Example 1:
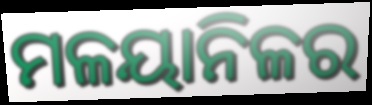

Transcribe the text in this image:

ମଳୟାନିଳର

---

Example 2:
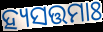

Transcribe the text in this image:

ହ୍ୟସତ୍ତମାଃ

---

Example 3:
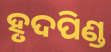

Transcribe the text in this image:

ହୃଦପିଣ୍ଡ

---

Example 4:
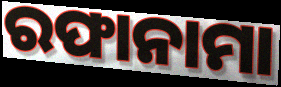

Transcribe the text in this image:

ରଫାନାମା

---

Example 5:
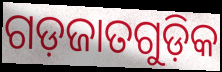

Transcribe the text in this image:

ଗଡ଼ଜାତଗୁଡ଼ିକ